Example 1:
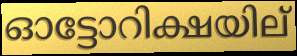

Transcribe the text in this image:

ഓട്ടോറിക്ഷയില്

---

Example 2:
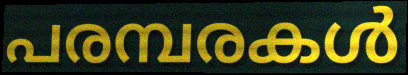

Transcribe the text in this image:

പരമ്പരകൾ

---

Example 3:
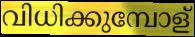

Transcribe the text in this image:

വിധിക്കുമ്പോള്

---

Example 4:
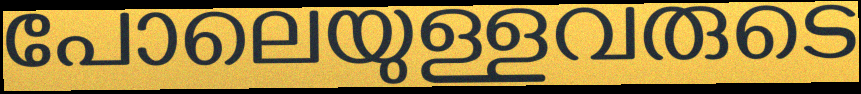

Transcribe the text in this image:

പോലെയുള്ളവരുടെ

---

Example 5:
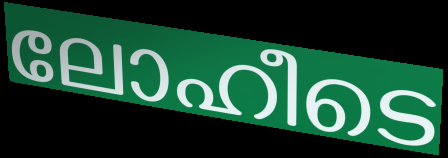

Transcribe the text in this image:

ലോഹീടെ